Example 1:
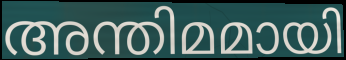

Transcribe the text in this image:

അന്തിമമായി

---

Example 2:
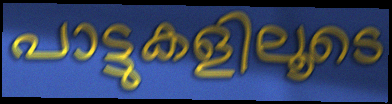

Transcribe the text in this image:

പാട്ടുകളിലൂടെ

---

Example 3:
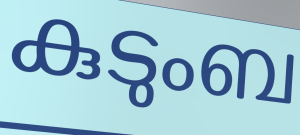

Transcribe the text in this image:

കുടുംബ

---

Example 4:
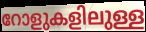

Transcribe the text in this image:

റോളുകളിലുള്ള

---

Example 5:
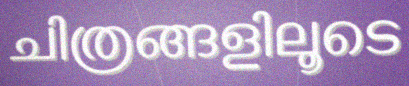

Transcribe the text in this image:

ചിത്രങ്ങളിലൂടെ